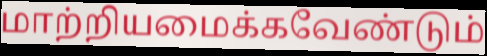
மாற்றியமைக்கவேண்டும்